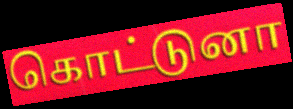
கொட்டுனா